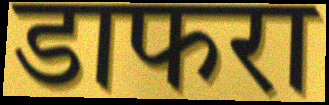
डाफरा